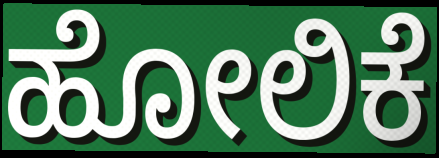
ಹೋಲಿಕೆ